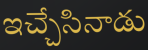
ఇచ్చేసినాడు